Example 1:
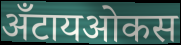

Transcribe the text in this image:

अँटायओकस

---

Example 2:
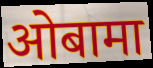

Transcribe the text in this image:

ओबामा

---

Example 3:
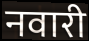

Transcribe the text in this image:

नवारी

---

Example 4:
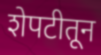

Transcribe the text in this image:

शेपटीतून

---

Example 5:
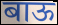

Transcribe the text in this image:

बाऊ